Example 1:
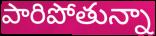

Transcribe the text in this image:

పారిపోతున్నా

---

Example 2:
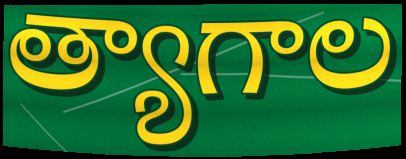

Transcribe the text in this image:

త్యాగాల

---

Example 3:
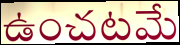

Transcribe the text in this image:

ఉంచటమే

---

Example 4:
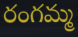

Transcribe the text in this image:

రంగమ్మ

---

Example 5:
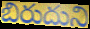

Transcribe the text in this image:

బిరుదుని